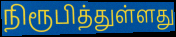
நிரூபித்துள்ளது